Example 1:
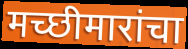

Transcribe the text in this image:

मच्छीमारांचा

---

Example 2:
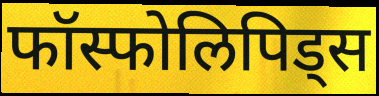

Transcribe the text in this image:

फॉस्फोलिपिड्स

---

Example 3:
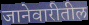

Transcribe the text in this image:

जानेवारीतील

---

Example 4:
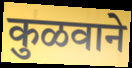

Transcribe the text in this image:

कुळवाने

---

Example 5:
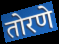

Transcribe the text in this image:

तोरणे